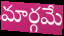
మార్గమే